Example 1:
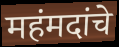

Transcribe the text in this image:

महंमदांचे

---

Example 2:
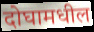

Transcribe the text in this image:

दोघामधील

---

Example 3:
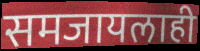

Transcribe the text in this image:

समजायलाही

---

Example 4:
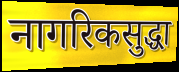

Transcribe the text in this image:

नागरिकसुद्धा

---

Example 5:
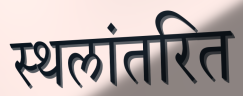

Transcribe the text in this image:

स्थलांतरित